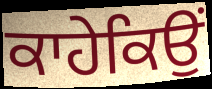
ਕਾਹੇਕਿਉਂ